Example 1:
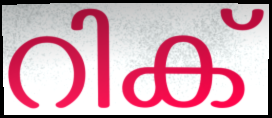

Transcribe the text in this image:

റിക്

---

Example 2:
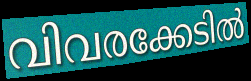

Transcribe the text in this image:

വിവരക്കേടിൽ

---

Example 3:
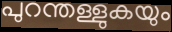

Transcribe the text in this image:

പുറന്തള്ളുകയും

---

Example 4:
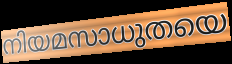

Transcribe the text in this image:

നിയമസാധുതയെ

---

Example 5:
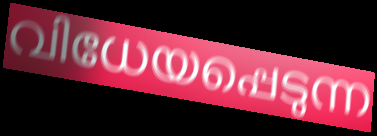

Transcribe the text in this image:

വിധേയപ്പെടുന്ന